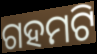
ଗହମଟି